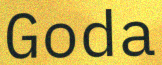
Goda